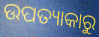
ଉପତ୍ୟାକାରୁ